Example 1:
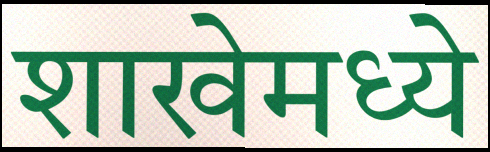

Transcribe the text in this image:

शाखेमध्ये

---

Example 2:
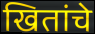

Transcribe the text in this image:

खितांचे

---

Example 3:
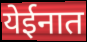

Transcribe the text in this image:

येईनात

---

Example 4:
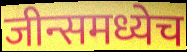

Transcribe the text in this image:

जीन्समध्येच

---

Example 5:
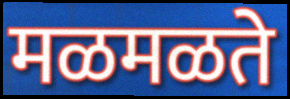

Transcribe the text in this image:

मळमळते